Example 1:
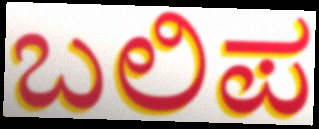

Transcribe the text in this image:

ಬಲಿಪ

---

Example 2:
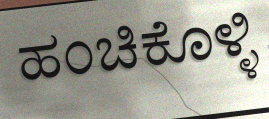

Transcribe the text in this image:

ಹಂಚಿಕೊಳ್ಳಿ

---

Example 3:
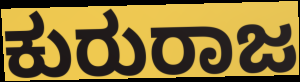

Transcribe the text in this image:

ಕುರುರಾಜ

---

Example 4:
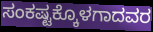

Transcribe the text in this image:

ಸಂಕಷ್ಟಕ್ಕೊಳಗಾದವರ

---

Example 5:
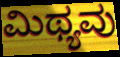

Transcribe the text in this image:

ಮಿಥ್ಯವು